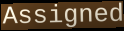
Assigned